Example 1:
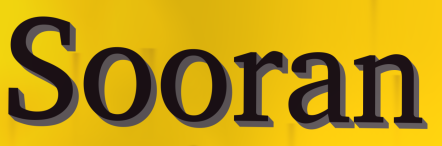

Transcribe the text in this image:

Sooran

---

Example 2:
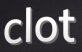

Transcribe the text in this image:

clot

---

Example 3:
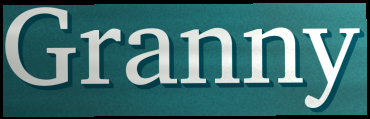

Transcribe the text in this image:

Granny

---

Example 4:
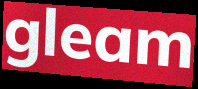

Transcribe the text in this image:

gleam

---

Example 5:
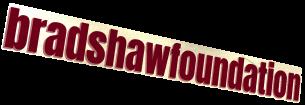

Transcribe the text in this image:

bradshawfoundation